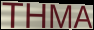
THMA